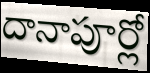
దానాపూర్లో